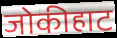
जोकीहाट